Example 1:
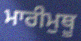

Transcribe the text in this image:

ਮਾਰੀਮੁਥੂ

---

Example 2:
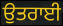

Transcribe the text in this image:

ਉਤਰਾਈ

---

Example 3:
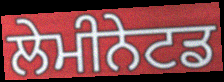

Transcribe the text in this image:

ਲੇਮੀਨੇਟਡ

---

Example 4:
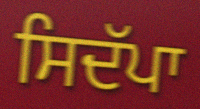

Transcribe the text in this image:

ਸਿਦੱਪਾ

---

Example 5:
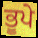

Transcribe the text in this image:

ਭੂਪੇ